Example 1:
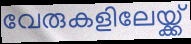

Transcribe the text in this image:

വേരുകളിലേയ്ക്ക്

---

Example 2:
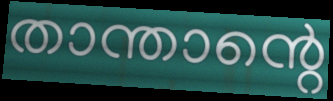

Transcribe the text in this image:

താന്താന്റെ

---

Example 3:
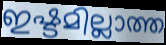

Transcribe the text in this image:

ഇഷ്ടമില്ലാത്ത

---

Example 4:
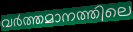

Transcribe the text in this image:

വർത്തമാനത്തിലെ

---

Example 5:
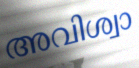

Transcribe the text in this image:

അവിശ്വാ